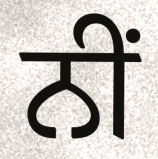
ਨੀਂ